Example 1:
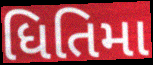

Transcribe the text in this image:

ધિતિમા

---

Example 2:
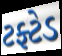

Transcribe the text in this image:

ટફ્ટેડ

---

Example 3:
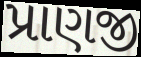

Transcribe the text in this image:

પ્રાણજી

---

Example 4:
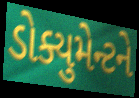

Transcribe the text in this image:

ડોક્યુમેન્ટને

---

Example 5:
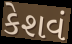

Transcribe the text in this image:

કેશવં